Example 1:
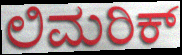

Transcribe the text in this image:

ಲಿಮರಿಕ್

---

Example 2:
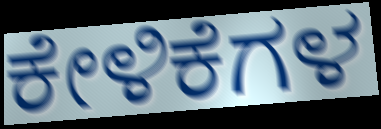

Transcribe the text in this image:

ಕೇಳಿಕೆಗಳ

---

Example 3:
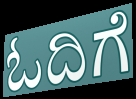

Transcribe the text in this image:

ಓದಿಗೆ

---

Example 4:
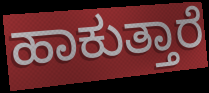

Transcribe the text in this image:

ಹಾಕುತ್ತಾರೆ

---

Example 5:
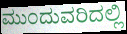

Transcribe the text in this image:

ಮುಂದುವರಿದಲ್ಲಿ